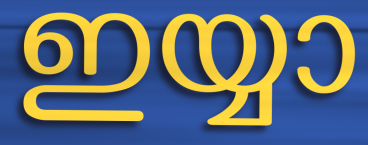
ഇയ്യാ